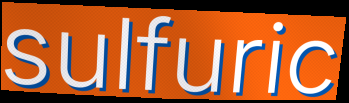
sulfuric